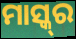
ମାସ୍କ୍‌ର